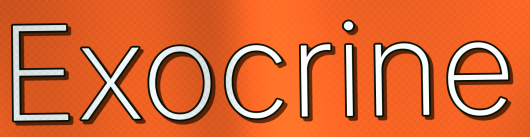
Exocrine